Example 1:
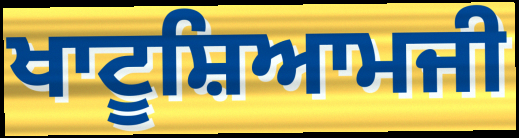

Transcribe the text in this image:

ਖਾਟੂਸ਼ਿਆਮਜੀ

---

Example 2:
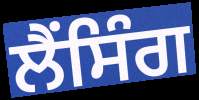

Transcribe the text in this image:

ਲੈਂਸਿੰਗ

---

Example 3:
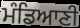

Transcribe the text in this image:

ਮੰਡਿਆਣੀ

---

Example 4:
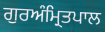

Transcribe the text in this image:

ਗੁਰਅੰਮ੍ਰਿਤਪਾਲ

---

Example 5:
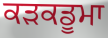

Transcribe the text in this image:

ਕੜਕਡੂਮਾ